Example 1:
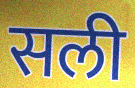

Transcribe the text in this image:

सली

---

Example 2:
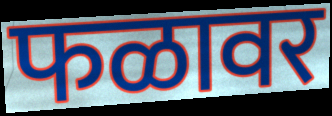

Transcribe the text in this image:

फळावर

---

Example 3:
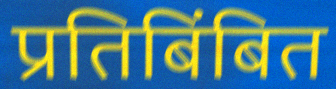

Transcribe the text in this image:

प्रतिबिंबित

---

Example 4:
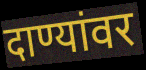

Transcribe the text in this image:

दाण्यांवर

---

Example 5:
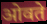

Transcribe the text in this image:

ओवते